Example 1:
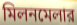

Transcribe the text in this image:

মিলনমেলার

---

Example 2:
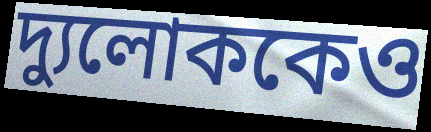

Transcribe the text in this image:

দ্যুলোককেও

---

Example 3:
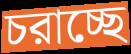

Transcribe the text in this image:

চরাচ্ছে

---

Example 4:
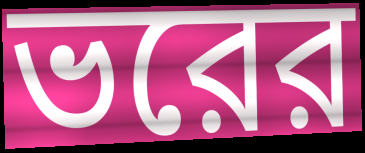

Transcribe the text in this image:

ভরের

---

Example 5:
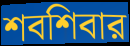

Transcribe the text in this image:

শবশিবার